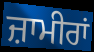
ਜ਼ਾਮੀਰਾਂ